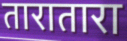
तारातारा